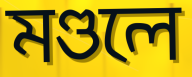
মণ্ডলে